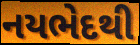
નયભેદથી